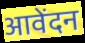
आवेंदन